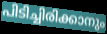
പിടിച്ചിരിക്കാനും